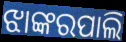
ଝାଙ୍କରପାଲି